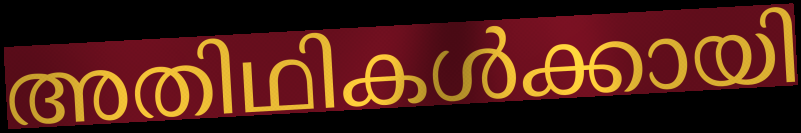
അതിഥികൾക്കായി